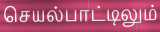
செயல்பாட்டிலும்